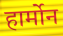
हार्मोन